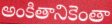
అంకితానికెంతా